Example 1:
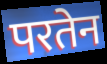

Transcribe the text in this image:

परतेन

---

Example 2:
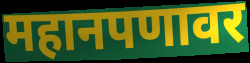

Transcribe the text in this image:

महानपणावर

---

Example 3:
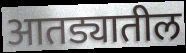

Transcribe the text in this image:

आतड्यातील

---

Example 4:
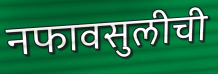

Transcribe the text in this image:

नफावसुलीची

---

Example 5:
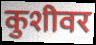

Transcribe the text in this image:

कुशीवर